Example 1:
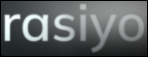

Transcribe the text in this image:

rasiyo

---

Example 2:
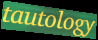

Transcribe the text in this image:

tautology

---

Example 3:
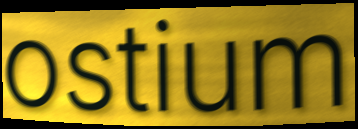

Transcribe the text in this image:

ostium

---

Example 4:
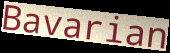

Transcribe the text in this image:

Bavarian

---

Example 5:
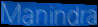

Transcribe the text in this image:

Manindra